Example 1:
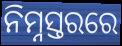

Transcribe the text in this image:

ନିମ୍ନସ୍ତରରେ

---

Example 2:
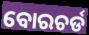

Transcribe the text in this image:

ବୋରଚର୍ଡ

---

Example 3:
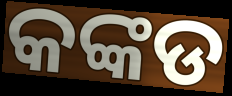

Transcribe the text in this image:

କଙ୍କଡ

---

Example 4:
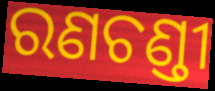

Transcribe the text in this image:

ରଣଚଣ୍ଡୀ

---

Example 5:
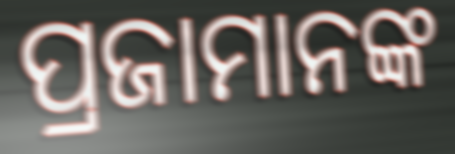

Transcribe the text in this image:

ପ୍ରଜାମାନଙ୍କ